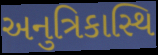
અનુત્રિકાસ્થિ